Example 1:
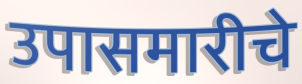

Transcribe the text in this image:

उपासमारीचे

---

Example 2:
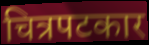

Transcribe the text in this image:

चित्रपटकार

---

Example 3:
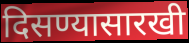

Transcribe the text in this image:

दिसण्यासारखी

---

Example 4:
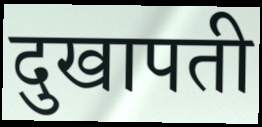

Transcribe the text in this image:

दुखापती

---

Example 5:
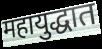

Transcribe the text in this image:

महायुद्धात